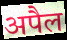
अपैल